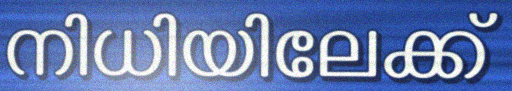
നിധിയിലേക്ക്